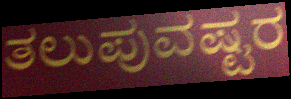
ತಲುಪುವಷ್ಟರ